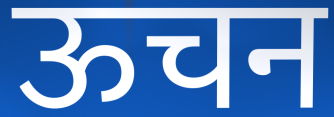
ऊचन